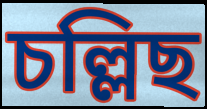
চল্লিছ